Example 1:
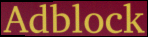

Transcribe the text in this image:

Adblock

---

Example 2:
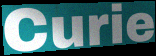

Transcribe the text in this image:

Curie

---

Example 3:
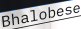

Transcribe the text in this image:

Bhalobese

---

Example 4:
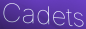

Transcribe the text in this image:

Cadets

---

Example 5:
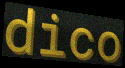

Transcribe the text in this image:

dico